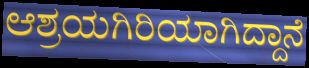
ಆಶ್ರಯಗಿರಿಯಾಗಿದ್ದಾನೆ